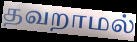
தவறாமல்